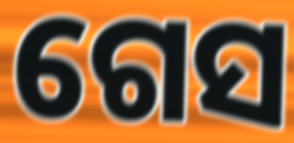
ଗେସ